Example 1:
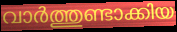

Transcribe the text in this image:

വാർത്തുണ്ടാക്കിയ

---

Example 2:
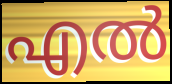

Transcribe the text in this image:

എൽ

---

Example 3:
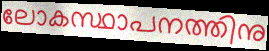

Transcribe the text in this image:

ലോകസ്ഥാപനത്തിനു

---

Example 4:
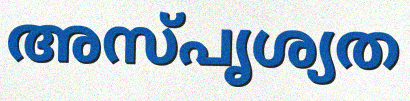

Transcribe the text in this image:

അസ്പൃശ്യത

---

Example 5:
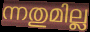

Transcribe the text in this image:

ന്നതുമില്ല